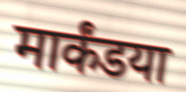
मार्कंडया